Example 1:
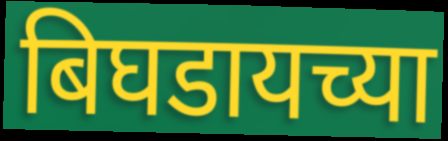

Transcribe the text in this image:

बिघडायच्या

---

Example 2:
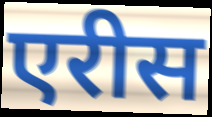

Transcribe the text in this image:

एरीस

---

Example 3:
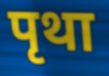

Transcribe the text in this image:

पृथा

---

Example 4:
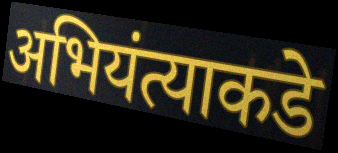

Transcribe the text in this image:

अभियंत्याकडे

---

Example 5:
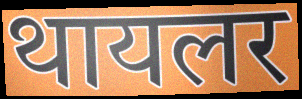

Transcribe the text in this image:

थायलर